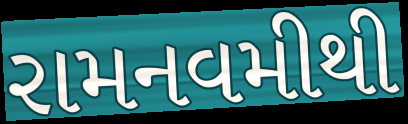
રામનવમીથી